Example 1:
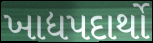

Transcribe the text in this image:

ખાદ્યપદાર્થો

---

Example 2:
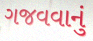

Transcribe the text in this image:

ગજવવાનું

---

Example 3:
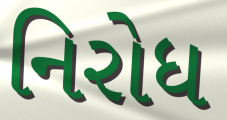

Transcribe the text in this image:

નિરોધ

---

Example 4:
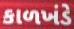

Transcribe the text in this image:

કાળખંડે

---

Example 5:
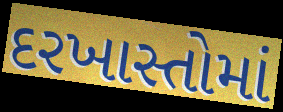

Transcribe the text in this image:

દરખાસ્તોમાં